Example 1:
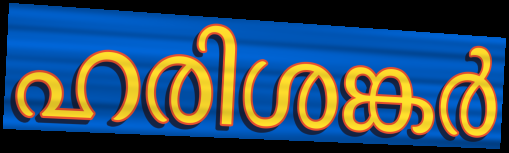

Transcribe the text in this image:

ഹരിശങ്കർ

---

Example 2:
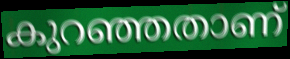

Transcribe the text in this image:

കുറഞ്ഞതാണ്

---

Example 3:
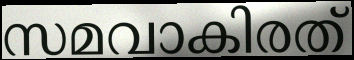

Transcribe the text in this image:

സമവാകിരത്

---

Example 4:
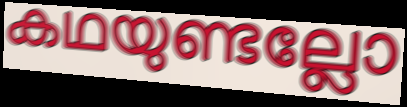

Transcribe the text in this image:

കഥയുണ്ടല്ലോ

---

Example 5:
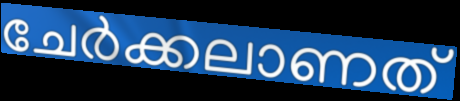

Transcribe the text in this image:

ചേർക്കലാണത്